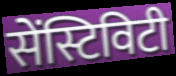
सेंस्टिविटी